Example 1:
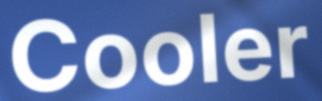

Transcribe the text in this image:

Cooler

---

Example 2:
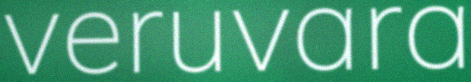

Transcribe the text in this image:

veruvara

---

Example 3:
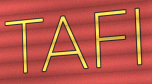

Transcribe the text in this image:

TAFI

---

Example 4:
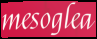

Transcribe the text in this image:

mesoglea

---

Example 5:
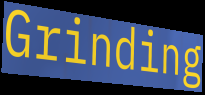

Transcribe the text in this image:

Grinding